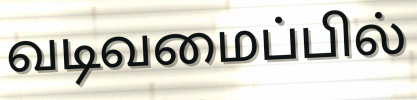
வடிவமைப்பில்